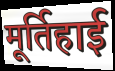
मूर्तिहाई